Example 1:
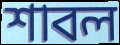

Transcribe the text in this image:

শাবল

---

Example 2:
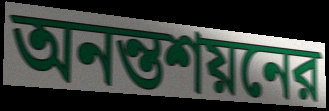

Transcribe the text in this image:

অনন্তশয়নের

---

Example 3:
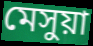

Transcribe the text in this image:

মেসুয়া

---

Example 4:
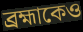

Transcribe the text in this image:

ব্রহ্মাকেও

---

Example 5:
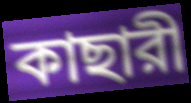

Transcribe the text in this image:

কাছারী